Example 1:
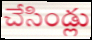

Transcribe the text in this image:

చేసిండ్లు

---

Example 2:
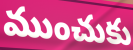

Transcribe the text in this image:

ముంచుకు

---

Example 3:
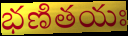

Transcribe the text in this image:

భణితయః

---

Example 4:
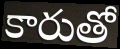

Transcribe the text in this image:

కారుతో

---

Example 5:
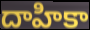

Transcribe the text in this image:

దాహికా